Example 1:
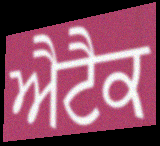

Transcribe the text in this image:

ਐਟੈਕ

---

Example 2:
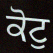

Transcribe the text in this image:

ਕੋਟੁ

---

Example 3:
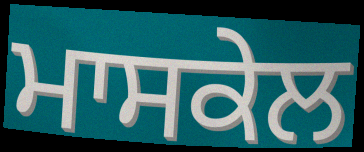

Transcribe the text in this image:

ਮਾਸਕੇਲ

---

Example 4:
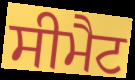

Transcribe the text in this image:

ਸੀਮੈਟ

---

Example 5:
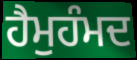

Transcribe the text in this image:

ਹੈਮੁਹੰਮਦ